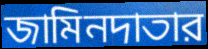
জামিনদাতার